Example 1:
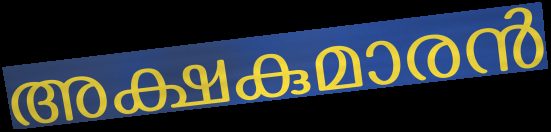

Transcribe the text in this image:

അക്ഷകുമാരൻ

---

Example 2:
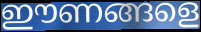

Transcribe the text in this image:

ഈണങ്ങളെ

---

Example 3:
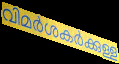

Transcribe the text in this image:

വിമർശകർക്കുള്ള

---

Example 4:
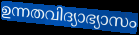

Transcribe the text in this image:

ഉന്നതവിദ്യാഭ്യാസം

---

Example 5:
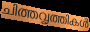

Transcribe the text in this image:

ചിത്തവൃത്തികൾ